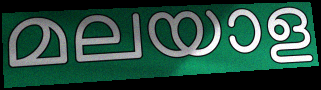
മലയാള